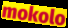
mokolo